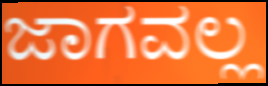
ಜಾಗವಲ್ಲ